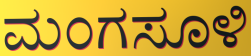
ಮಂಗಸೂಳಿ